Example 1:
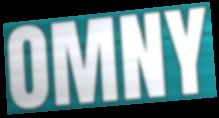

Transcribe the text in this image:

OMNY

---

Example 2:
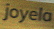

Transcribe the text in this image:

joyela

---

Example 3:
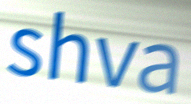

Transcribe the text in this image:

shva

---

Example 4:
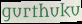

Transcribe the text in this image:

gurthuku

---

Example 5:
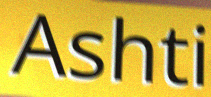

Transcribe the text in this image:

Ashti